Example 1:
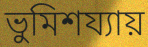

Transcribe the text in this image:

ভুমিশয্যায়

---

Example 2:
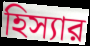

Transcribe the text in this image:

হিস্যার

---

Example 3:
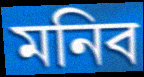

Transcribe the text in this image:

মনিব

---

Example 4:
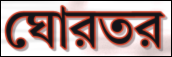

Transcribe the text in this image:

ঘোরতর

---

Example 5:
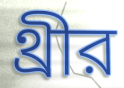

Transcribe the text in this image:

থ্রীর